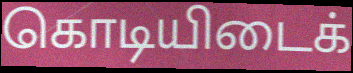
கொடியிடைக்